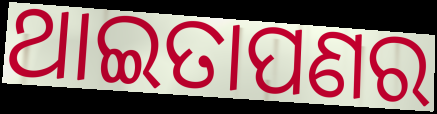
ଥାଇତାପଣର